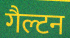
गैल्टन